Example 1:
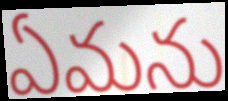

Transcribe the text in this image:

ఏమను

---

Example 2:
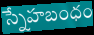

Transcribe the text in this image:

స్నేహబంధం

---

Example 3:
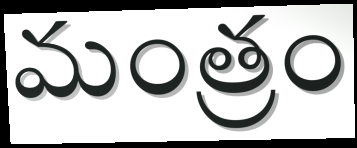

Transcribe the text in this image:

మంత్రం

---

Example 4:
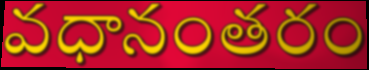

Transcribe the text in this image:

వధానంతరం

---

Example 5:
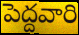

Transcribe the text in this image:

పెద్దవారి